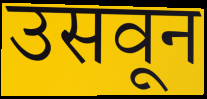
उसवून